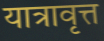
यात्रावृत्त